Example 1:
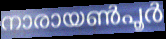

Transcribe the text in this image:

നാരായൺപൂർ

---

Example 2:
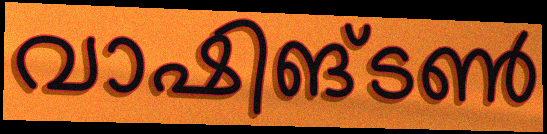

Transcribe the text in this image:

വാഷിങ്ടൺ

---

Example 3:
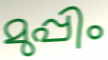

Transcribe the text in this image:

മുപ്പിം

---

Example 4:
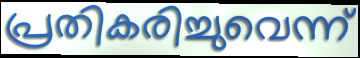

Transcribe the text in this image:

പ്രതികരിച്ചുവെന്ന്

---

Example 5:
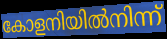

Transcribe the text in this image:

കോളനിയിൽനിന്ന്